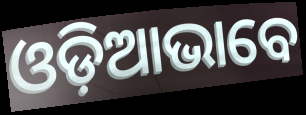
ଓଡ଼ିଆଭାବେ